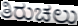
ತಿರುಚಲು